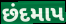
છંદમાપ